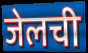
जेलची